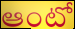
ఆంటో